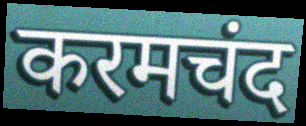
करमचंद